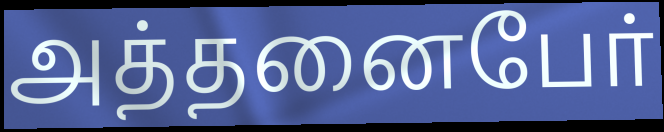
அத்தனைபேர்